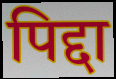
पिद्दा